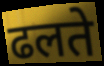
ढलते